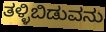
ತಳ್ಳಿಬಿಡುವನು